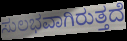
ಸುಲಭವಾಗಿರುತ್ತದೆ